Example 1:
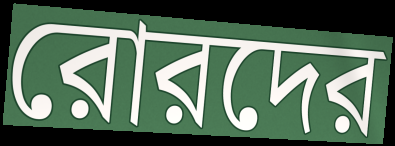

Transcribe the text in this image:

রোরদের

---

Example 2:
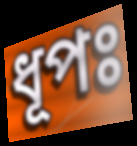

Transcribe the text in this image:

ধূপঃ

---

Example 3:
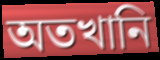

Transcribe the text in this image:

অতখানি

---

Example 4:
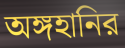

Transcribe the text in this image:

অঙ্গহানির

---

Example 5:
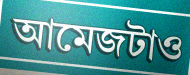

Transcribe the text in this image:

আমেজটাও